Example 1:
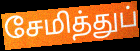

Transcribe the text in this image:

சேமித்துப்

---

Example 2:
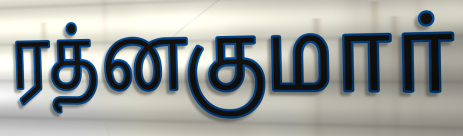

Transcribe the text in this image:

ரத்னகுமார்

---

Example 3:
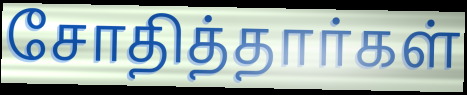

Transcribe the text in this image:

சோதித்தார்கள்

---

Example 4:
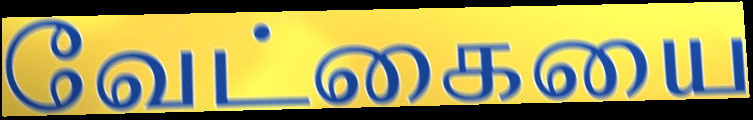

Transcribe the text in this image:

வேட்கையை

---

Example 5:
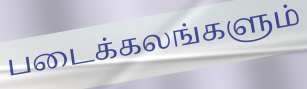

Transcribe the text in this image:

படைக்கலங்களும்